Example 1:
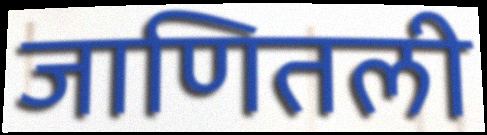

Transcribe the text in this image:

जाणितली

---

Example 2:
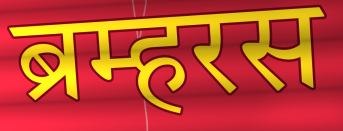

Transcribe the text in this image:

ब्रम्हरस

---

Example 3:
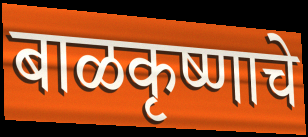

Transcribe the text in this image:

बाळकृष्णाचे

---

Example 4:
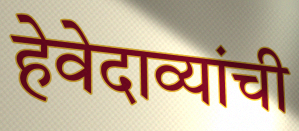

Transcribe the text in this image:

हेवेदाव्यांची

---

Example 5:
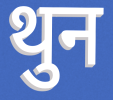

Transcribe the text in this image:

थुन